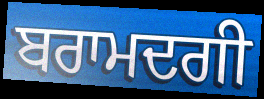
ਬਰਾਮਦਗੀ